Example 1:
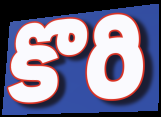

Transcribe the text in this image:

కొరి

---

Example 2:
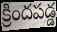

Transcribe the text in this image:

క్రిందపడ్డ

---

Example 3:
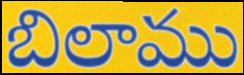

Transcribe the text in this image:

బిలాము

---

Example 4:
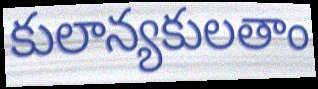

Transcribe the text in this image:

కులాన్యకులతాం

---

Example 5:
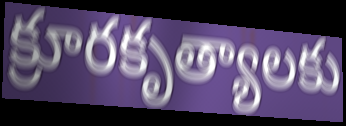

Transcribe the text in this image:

క్రూరకృత్యాలకు